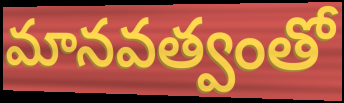
మానవత్వంతో